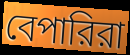
বেপারিরা